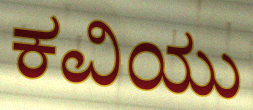
ಕವಿಯು